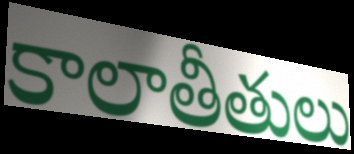
కాలాతీతులు